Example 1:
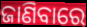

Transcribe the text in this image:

ଜାଣିବାରେ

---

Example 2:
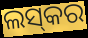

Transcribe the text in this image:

ଲସ୍‌କର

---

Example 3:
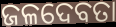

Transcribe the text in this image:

ଜଳଦେବତା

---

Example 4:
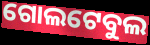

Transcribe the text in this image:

ଗୋଲଟେବୁଲ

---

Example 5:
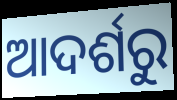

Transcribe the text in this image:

ଆଦର୍ଶରୁ